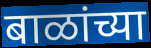
बाळांच्या